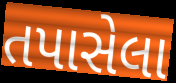
તપાસેલા